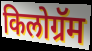
किलोग्रॅम